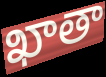
ఖాతా